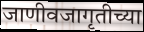
जाणीवजागृतीच्या